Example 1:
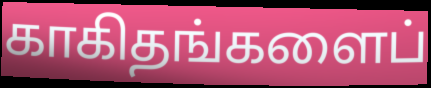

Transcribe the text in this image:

காகிதங்களைப்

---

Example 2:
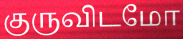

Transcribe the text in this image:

குருவிடமோ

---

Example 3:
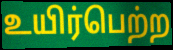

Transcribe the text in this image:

உயிர்பெற்ற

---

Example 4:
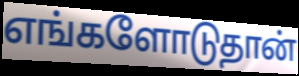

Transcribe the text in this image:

எங்களோடுதான்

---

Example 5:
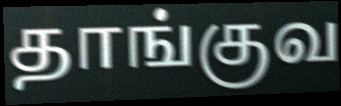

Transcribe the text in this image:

தாங்குவ